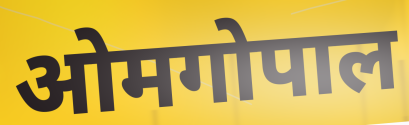
ओमगोपाल